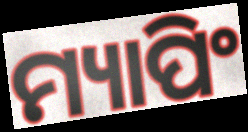
ମ୍ୟାପିଂ